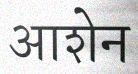
आशेन